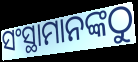
ସଂସ୍ଥାମାନଙ୍କଠୁ